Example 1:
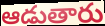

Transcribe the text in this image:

ఆడుతారు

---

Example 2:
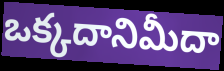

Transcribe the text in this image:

ఒక్కదానిమీదా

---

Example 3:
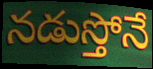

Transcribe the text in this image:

నడుస్తోనే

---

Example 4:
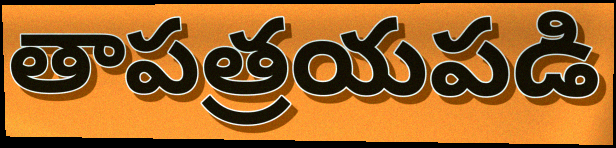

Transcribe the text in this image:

తాపత్రయపడి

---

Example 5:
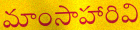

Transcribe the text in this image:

మాంసాహారివి